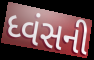
ધ્વંસની